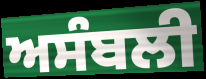
ਅਸੰਬਲੀ